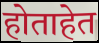
होताहेत